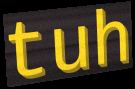
tuh